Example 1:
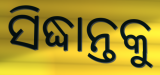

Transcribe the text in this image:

ସିଦ୍ଧାନ୍ତକୁ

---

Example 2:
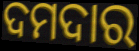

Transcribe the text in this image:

ଦମଦାର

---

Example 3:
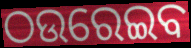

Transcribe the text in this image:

ଠଉରେଇବ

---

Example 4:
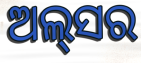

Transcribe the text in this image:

ଅଲ୍‌ସର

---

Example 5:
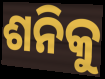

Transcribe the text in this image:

ଶନିକୁ